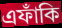
এফাঁকি